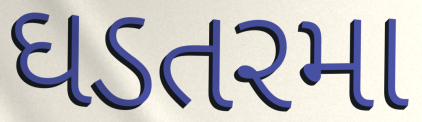
ઘડતરમા